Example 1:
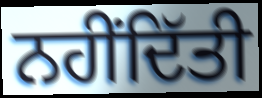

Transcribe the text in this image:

ਨਹੀਂਦਿੱਤੀ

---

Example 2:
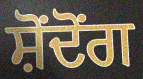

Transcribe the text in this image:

ਸ਼ੋਂਦੋਂਗ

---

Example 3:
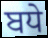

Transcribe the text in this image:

ਬਧੇ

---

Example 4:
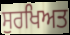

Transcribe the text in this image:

ਸੁਰਖਿਅਤ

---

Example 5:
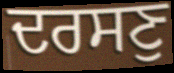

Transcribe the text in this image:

ਦਰਸਣੁ